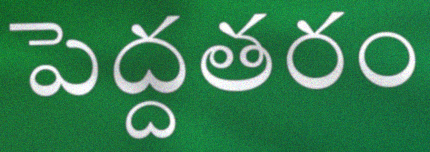
పెద్దతరం